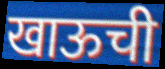
खाऊची